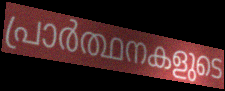
പ്രാർത്ഥനകളുടെ